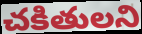
చకితులని